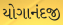
યોગાનંદજી